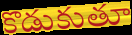
కొడుకుతూ